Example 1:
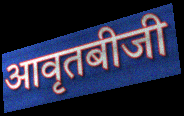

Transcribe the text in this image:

आवृतबीजी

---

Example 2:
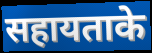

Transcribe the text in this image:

सहायताके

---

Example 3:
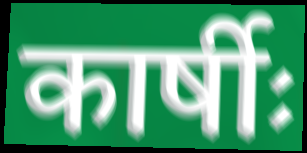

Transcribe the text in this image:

कार्षीः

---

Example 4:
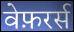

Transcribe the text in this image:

वेफ़रर्स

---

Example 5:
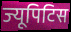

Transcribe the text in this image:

ज्यूपिटिस